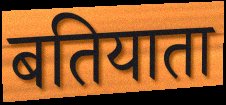
बतियाता